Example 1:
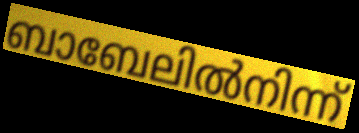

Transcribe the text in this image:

ബാബേലിൽനിന്ന്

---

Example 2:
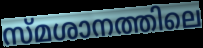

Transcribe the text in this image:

സ്മശാനത്തിലെ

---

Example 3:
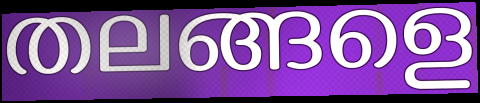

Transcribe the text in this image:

തലങ്ങളെ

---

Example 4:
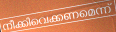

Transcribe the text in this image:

നീക്കിവെക്കണമെന്ന്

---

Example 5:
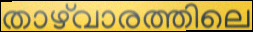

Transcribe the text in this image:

താഴ്‌വാരത്തിലെ